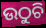
ଉଠୁଚି